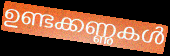
ഉണ്ടക്കണ്ണുകൾ